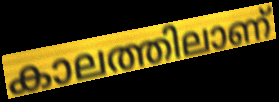
കാലത്തിലാണ്